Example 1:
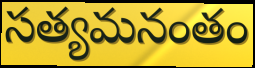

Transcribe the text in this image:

సత్యమనంతం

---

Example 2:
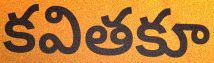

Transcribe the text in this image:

కవితకూ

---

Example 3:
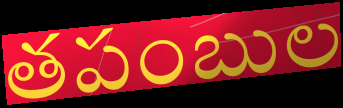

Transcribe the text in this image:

తపంబుల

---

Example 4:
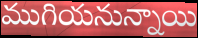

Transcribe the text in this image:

ముగియనున్నాయి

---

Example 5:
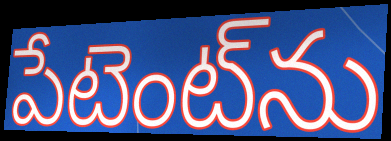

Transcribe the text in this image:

పేటెంట్‌ను